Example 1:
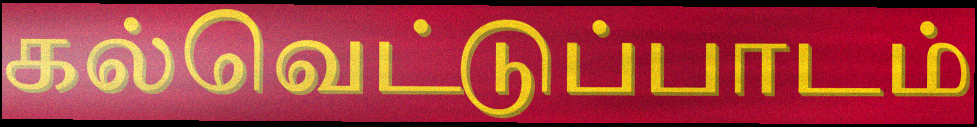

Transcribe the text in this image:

கல்வெட்டுப்பாடம்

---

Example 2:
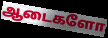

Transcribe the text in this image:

ஆடைகளோ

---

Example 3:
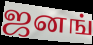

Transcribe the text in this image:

ஜனங்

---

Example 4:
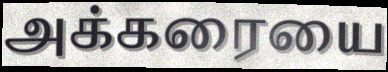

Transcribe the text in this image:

அக்கரையை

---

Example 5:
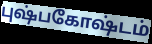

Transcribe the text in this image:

புஷ்பகோஷ்டம்